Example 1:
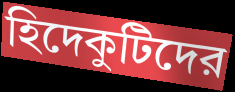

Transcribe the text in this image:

হিদেকুটিদের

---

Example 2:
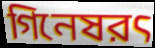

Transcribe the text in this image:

গিনেষরৎ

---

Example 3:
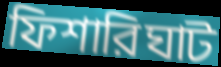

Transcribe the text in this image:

ফিশারিঘাট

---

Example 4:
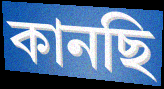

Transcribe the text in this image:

কানছি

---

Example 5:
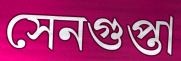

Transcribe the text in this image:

সেনগুপ্তা